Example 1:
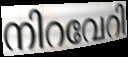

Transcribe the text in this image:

നിറവേറി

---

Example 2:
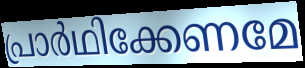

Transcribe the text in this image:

പ്രാർഥിക്കേണമേ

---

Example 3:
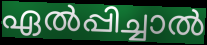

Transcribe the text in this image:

ഏൽപ്പിച്ചാൽ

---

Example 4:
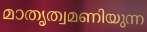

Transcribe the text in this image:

മാതൃത്വമണിയുന്ന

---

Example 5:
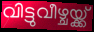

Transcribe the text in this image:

വിട്ടുവീഴ്ചയ്ക്ക്